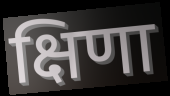
क्षिणा